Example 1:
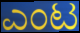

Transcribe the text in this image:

ಎಂಟ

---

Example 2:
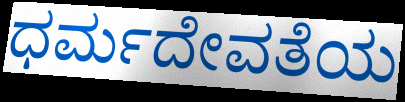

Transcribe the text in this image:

ಧರ್ಮದೇವತೆಯ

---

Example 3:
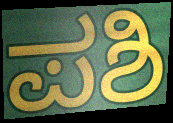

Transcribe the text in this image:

ಪಶಿ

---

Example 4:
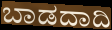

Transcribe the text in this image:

ಬಾಡದಾದಿ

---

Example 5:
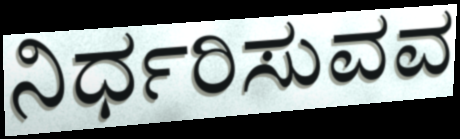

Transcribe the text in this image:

ನಿರ್ಧರಿಸುವವ